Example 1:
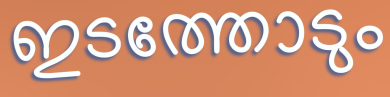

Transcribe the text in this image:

ഇടത്തോടും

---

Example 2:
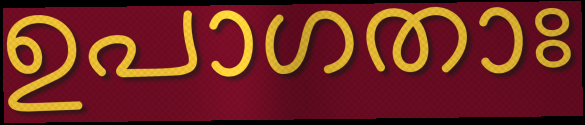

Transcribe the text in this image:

ഉപാഗതാഃ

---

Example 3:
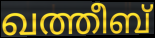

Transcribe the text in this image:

ഖത്തീബ്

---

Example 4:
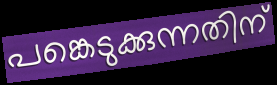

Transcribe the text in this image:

പങ്കെടുക്കുന്നതിന്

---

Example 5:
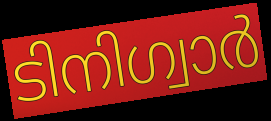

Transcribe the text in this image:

ടിനിഗ്വാർ